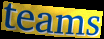
teams